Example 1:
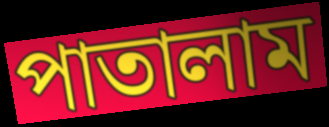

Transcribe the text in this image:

পাতালাম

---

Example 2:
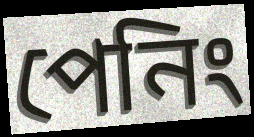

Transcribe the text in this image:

পেনিং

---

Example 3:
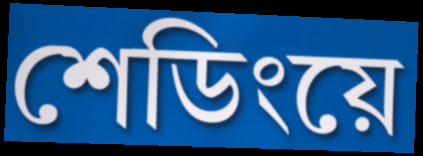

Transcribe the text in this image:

শেডিংয়ে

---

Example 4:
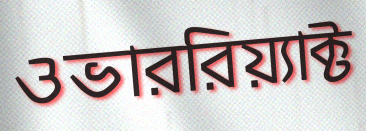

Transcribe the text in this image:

ওভাররিয়্যাক্ট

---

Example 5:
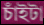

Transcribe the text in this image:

চাঁইটা